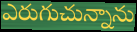
ఎరుగుచున్నాను